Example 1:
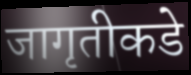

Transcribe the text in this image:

जागृतीकडे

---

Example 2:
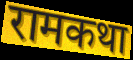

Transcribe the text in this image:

रामकथा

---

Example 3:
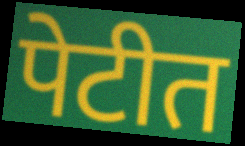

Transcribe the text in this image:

पेटीत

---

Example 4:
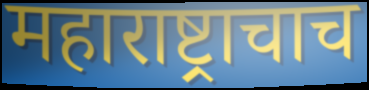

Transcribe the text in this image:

महाराष्ट्राचाच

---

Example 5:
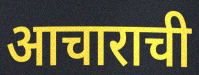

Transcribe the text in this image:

आचाराची